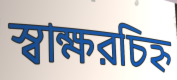
স্বাক্ষরচিহ্ন